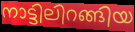
നാട്ടിലിറങ്ങിയ